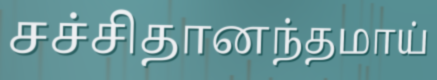
சச்சிதானந்தமாய்